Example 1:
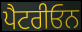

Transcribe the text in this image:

ਪੈਟਰੀਓਨ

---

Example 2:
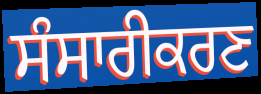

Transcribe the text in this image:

ਸੰਸਾਰੀਕਰਣ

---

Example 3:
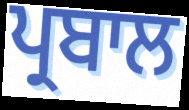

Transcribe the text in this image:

ਪ੍ਰਬਾਲ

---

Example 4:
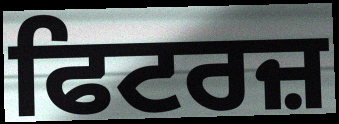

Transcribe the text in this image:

ਫਿਟਰਜ਼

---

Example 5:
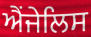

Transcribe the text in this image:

ਐਂਜੇਲਿਸ